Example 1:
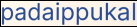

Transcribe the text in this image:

padaippukal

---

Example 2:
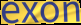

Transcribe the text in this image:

exon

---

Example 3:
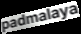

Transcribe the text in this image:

padmalaya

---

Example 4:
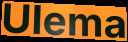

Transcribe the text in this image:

Ulema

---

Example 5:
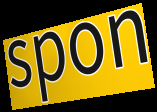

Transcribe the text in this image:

spon